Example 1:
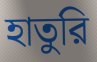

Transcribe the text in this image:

হাতুরি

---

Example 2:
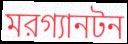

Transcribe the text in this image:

মরগ্যানটন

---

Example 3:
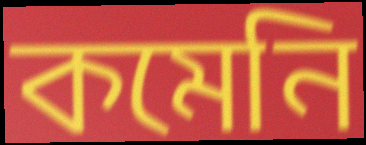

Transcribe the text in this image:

কমেনি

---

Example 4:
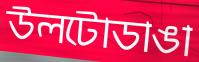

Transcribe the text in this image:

উলটোডাঙা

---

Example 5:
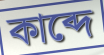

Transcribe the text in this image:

কাব্দে